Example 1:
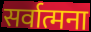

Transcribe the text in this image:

सर्वात्मना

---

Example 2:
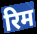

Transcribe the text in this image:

रिम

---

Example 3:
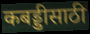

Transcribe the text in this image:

कबड्डीसाठी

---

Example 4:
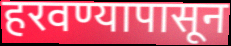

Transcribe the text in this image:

हरवण्यापासून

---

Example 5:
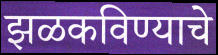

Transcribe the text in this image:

झळकविण्याचे